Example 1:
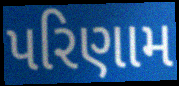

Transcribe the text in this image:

પરિણામ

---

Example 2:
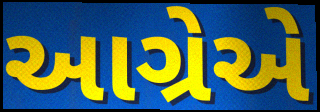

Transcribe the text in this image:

આગ્રેએ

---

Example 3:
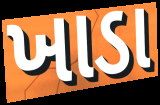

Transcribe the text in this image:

ખાડા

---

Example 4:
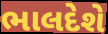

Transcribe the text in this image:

ભાલદેશે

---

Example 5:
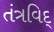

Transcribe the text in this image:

તંત્રવિદ્